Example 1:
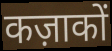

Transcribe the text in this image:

कज़ाकों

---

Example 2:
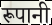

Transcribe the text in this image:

रूपानी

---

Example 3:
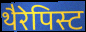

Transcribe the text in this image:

थैरेपिस्ट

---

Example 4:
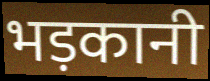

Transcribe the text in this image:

भड़कानी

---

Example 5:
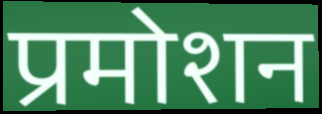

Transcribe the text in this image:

प्रमोशन